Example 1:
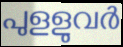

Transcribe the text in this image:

പുളളുവർ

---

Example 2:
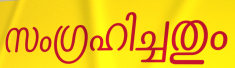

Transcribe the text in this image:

സംഗ്രഹിച്ചതും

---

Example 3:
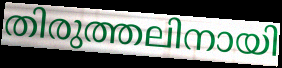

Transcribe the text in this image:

തിരുത്തലിനായി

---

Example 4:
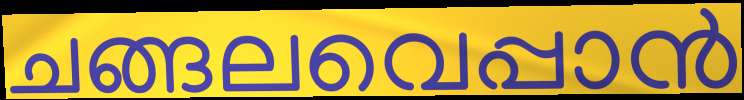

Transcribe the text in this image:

ചങ്ങലവെപ്പാൻ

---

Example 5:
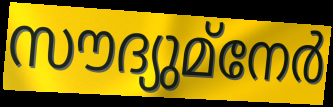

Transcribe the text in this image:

സൗദ്യുമ്നേർ